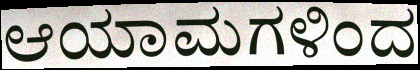
ಆಯಾಮಗಳಿಂದ